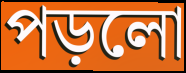
পড়লো